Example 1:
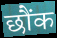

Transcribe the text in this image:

छौंक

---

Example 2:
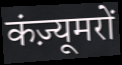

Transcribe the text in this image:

कंज़्यूमरों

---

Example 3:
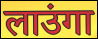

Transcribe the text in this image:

लाउंगा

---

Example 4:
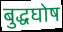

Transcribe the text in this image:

बुद्धघोष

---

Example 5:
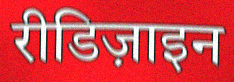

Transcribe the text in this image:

रीडिज़ाइन